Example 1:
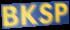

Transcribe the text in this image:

BKSP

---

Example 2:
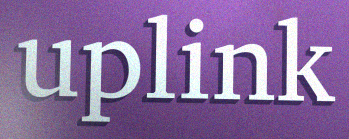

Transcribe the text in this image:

uplink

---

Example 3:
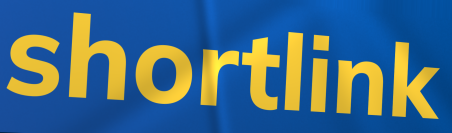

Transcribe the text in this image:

shortlink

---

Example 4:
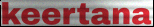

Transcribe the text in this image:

keertana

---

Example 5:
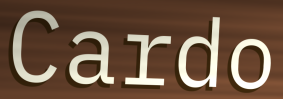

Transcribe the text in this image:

Cardo